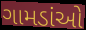
ગામડાંઓ